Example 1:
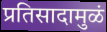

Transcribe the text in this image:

प्रतिसादामुळं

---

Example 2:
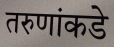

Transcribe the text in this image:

तरुणांकडे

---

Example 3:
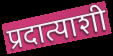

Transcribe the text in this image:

प्रदात्याशी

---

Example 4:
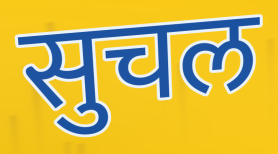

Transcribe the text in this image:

सुचल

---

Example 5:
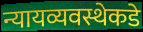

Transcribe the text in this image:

न्यायव्यवस्थेकडे